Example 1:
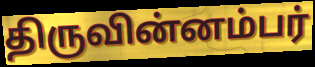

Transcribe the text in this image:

திருவின்னம்பர்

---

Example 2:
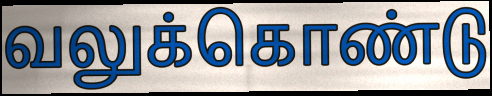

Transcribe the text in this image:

வலுக்கொண்டு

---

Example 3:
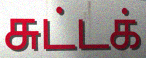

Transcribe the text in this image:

சுட்டக்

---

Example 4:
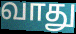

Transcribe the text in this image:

வாது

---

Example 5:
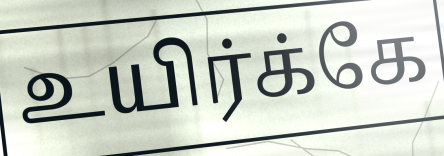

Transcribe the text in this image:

உயிர்க்கே